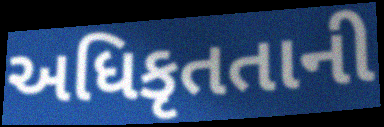
અધિકૃતતાની